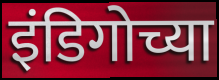
इंडिगोच्या